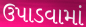
ઉપાડવામાં